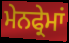
ਮੇਨਫ੍ਰੇਮਾਂ